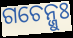
ଗଚେନ୍ଜୁଃ